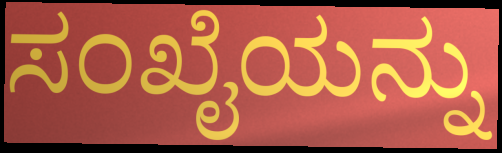
ಸಂಖೈಯನ್ನು